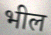
भील